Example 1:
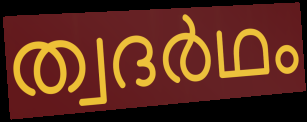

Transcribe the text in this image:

ത്വദർഥം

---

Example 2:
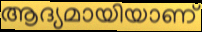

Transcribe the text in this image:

ആദ്യമായിയാണ്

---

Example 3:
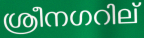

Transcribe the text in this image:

ശ്രീനഗറില്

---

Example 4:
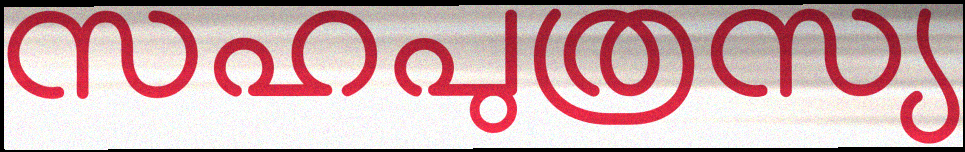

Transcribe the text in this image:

സഹപുത്രസ്യ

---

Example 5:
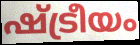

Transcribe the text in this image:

ഷ്ട്രീയം